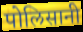
पोलिसानी